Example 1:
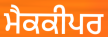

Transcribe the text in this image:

ਮੈਕਕੀਪਰ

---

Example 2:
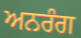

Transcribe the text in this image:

ਅਨਰੰਗ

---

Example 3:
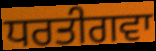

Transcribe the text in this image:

ਧਰਤੀਗਵਾ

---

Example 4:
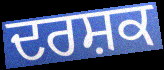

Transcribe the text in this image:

ਦਰਸ਼ਕ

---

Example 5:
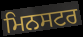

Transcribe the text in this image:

ਮਿਨਸਟਰ